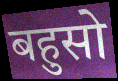
बहुसो